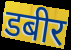
डबीर